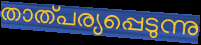
താത്പര്യപ്പെടുന്നു